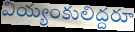
వియ్యంకులిద్దరూ